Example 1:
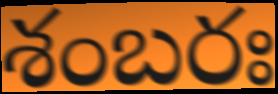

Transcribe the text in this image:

శంబరః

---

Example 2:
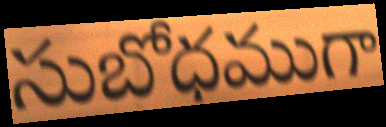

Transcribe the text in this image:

సుబోధముగా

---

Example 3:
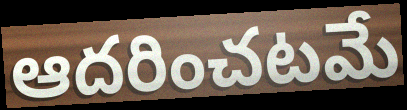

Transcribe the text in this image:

ఆదరించటమే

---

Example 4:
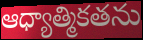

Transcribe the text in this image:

ఆధ్యాత్మికతను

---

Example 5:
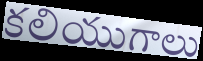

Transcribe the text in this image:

కలియుగాలు